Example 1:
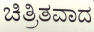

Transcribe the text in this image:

ಚಿತ್ರಿತವಾದ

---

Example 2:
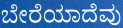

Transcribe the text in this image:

ಬೇರೆಯಾದೆವು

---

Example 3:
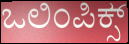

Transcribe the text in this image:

ಒಲಿಂಪಿಕ್ಸ್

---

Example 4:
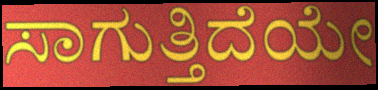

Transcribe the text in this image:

ಸಾಗುತ್ತಿದೆಯೇ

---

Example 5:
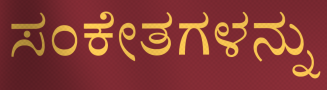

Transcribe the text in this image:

ಸಂಕೇತಗಳನ್ನು